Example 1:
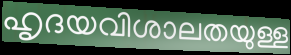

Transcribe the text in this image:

ഹൃദയവിശാലതയുള്ള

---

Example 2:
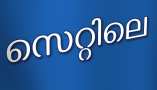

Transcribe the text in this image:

സെറ്റിലെ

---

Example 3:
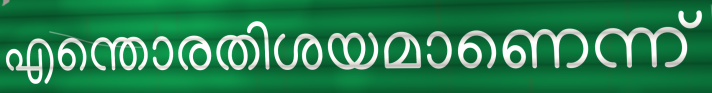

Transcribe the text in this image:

എന്തൊരതിശയമാണെന്ന്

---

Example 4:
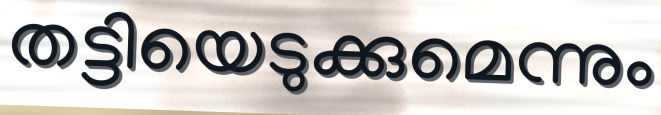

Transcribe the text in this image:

തട്ടിയെടുക്കുമെന്നും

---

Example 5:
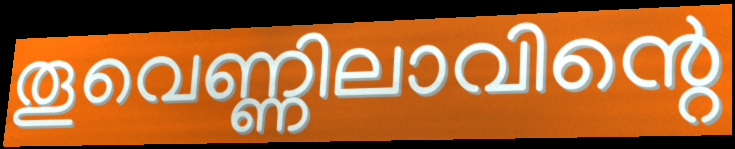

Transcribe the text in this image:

തൂവെണ്ണിലാവിന്റെ